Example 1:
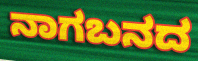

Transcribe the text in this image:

ನಾಗಬನದ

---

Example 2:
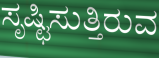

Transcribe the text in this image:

ಸೃಷ್ಟಿಸುತ್ತಿರುವ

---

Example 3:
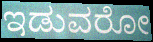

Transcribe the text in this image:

ಇಡುವರೋ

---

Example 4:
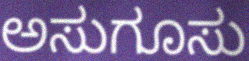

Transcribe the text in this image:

ಅಸುಗೂಸು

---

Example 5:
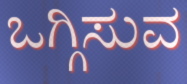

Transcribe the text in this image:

ಒಗ್ಗಿಸುವ